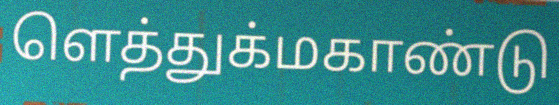
ளெத்துக்மகாண்டு